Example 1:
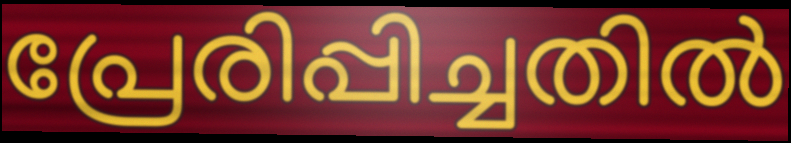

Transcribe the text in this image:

പ്രേരിപ്പിച്ചതിൽ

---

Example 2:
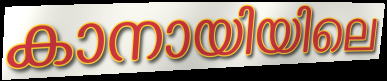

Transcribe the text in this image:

കാനായിയിലെ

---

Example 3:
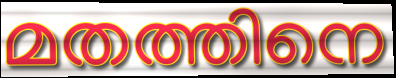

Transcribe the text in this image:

മതത്തിനെ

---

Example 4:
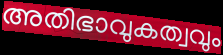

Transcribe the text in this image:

അതിഭാവുകത്വവും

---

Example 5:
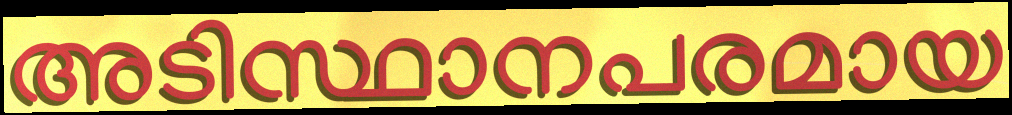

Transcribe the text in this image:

അടിസ്ഥാനപരമായ